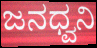
ಜನಧ್ವನಿ